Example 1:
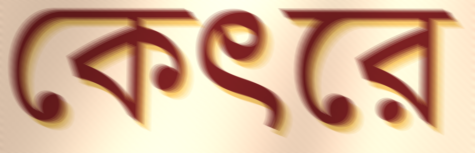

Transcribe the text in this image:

কেৎরে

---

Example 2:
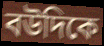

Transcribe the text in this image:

বউদিকে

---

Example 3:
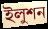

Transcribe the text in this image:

ইলুশন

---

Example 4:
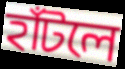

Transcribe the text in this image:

হাঁটলে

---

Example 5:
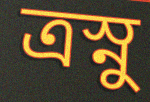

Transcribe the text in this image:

ত্রস্নু